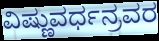
ವಿಷ್ಣುವರ್ಧನ್ರವರ